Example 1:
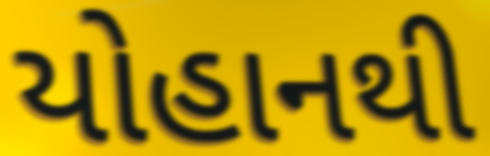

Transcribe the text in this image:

યોહાનથી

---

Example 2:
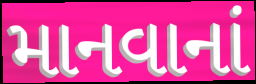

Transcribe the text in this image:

માનવાનાં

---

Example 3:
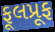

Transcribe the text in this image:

ફૂલપ્રૂફ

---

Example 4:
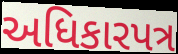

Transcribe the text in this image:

અધિકારપત્ર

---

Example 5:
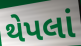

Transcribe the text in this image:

થેપલાં